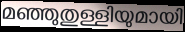
മഞ്ഞുതുള്ളിയുമായി